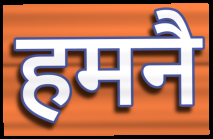
हमनै